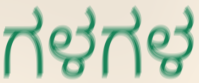
ಗಳಗಳ